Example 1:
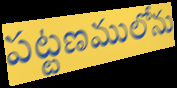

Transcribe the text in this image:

పట్టణములోను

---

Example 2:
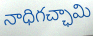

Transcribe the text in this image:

నాధిగచ్ఛామి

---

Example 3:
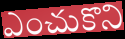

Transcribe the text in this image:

ఎంచుకొని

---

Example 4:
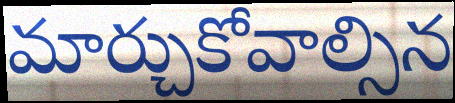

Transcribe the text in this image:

మార్చుకోవాల్సిన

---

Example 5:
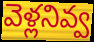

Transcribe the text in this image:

వెళ్లనివ్వ